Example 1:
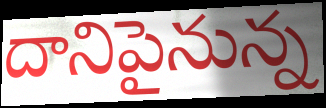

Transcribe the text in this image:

దానిపైనున్న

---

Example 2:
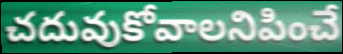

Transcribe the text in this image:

చదువుకోవాలనిపించే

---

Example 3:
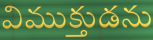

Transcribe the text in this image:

విముక్తుడను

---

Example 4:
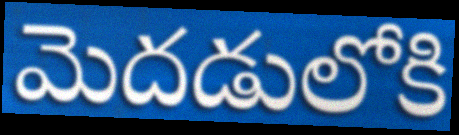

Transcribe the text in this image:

మెదడులోకి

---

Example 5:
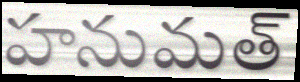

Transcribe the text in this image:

హనుమత్